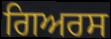
ਗਿਅਰਸ